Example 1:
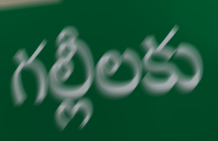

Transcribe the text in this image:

గల్లీలకు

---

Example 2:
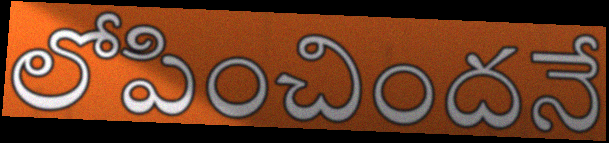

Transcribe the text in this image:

లోపించిందనే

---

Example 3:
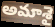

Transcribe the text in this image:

అమాశై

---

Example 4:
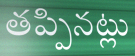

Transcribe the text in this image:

తప్పినట్లు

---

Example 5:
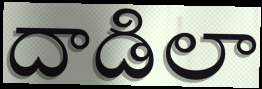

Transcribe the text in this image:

దాడిలా